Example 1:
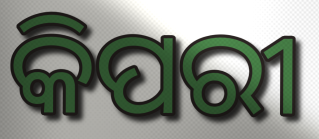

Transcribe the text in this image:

କିପରୀ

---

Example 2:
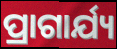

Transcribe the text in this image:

ପ୍ରାଗାର୍ଯ୍ୟ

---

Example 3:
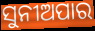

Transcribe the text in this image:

ସୁନୀଅପାର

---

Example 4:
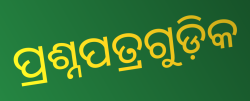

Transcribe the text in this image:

ପ୍ରଶ୍ନପତ୍ରଗୁଡ଼ିକ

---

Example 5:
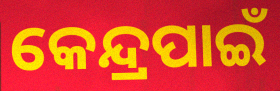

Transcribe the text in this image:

କେନ୍ଦ୍ରପାଇଁ